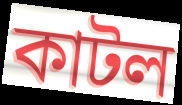
কাটল